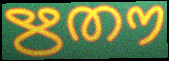
ഋതൗ